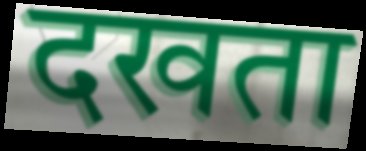
दखता